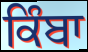
ਕਿੰਬਾ